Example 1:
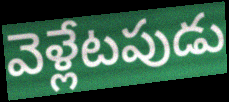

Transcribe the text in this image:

వెళ్లేటపుడు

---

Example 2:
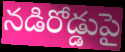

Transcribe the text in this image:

నడిరోడ్డుపై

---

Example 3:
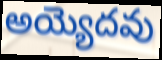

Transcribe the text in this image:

అయ్యెదవు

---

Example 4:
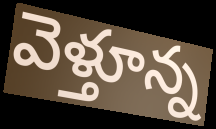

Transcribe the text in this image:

వెళ్తూన్న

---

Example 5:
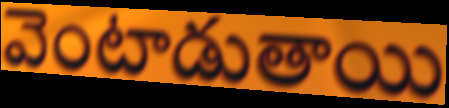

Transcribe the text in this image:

వెంటాడుతాయి